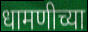
धामणीच्या